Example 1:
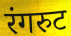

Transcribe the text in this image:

रंगरुट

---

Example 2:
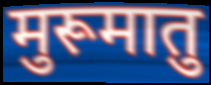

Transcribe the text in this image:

मुरूमातु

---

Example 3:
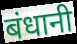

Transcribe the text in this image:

बंधानी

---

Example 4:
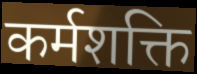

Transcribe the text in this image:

कर्मशक्ति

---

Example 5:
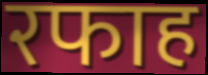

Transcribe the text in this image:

रफाह